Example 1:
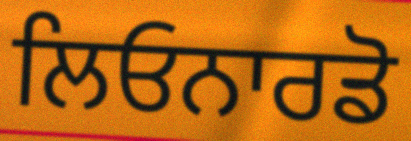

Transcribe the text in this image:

ਲਿਓਨਾਰਡੋ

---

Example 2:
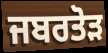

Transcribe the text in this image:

ਜਬਰਤੋੜ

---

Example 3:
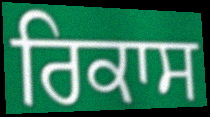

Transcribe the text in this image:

ਰਿਕਾਸ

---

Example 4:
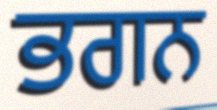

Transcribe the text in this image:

ਭਗਨ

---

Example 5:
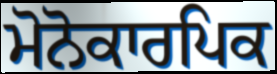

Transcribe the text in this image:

ਮੋਨੋਕਾਰਪਿਕ